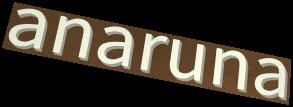
anaruna